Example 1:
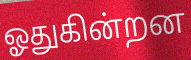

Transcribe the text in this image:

ஓதுகின்றன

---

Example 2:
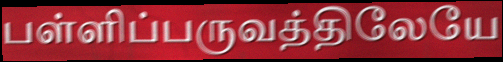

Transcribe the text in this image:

பள்ளிப்பருவத்திலேயே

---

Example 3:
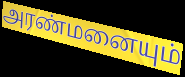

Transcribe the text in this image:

அரண்மனையும்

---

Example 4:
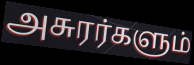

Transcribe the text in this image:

அசுரர்களும்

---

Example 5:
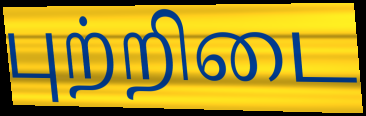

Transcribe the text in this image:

புற்றிடை